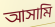
আসামি